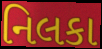
નિલકા